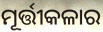
ମୂର୍ତ୍ତୀକଳାର